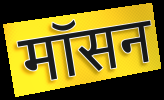
मॉसन